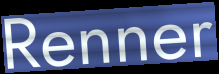
Renner